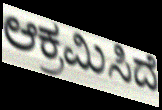
ಆಕ್ರಮಿಸಿದೆ